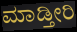
ಮಾಡ್ತೀರಿ